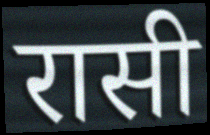
रासी